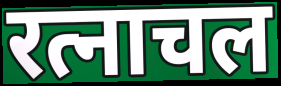
रत्नाचल